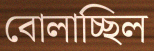
বোলাচ্ছিল